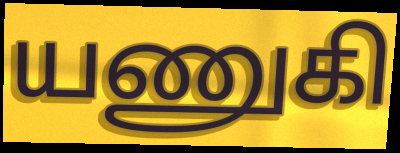
யணுகி